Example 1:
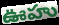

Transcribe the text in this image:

ఊహు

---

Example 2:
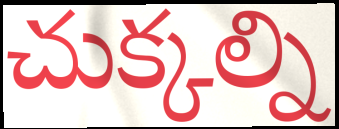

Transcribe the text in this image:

చుక్కల్ని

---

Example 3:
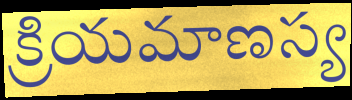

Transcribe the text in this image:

క్రియమాణస్య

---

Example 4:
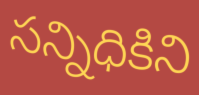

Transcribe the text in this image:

సన్నిధికిని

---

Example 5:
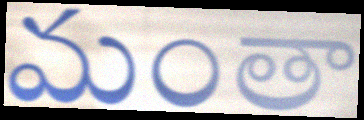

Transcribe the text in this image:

మంతా